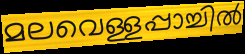
മലവെള്ളപ്പാച്ചിൽ